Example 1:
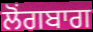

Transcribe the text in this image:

ਲੋਂਗਬਾਗ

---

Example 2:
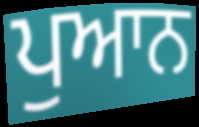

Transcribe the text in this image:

ਪੁਆਨ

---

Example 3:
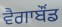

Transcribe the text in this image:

ਵੈਗਾਬੌਂਡ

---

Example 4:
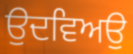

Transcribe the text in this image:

ਉਦਵਿਅਉ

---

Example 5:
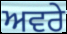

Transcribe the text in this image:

ਅਵਰੇ